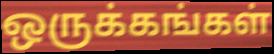
ஒருக்கங்கள்